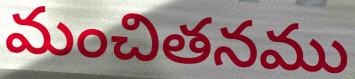
మంచితనము